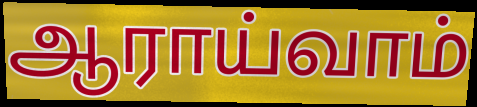
ஆராய்வாம்